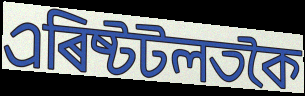
এৰিষ্টটলতকৈ